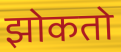
झोकतो